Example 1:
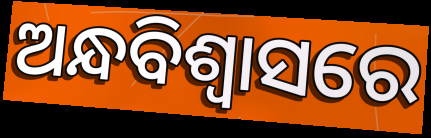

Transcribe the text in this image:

ଅନ୍ଧବିଶ୍ବାସରେ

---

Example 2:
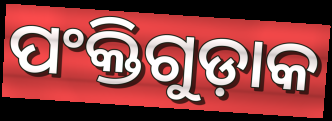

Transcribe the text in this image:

ପଂକ୍ତିଗୁଡ଼ାକ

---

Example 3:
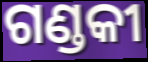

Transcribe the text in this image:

ଗଣ୍ଡକୀ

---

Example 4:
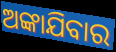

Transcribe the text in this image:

ଅଙ୍କାଯିବାର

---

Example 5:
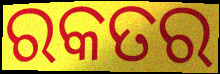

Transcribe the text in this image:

ରକତର